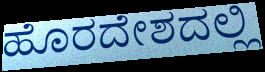
ಹೊರದೇಶದಲ್ಲಿ